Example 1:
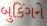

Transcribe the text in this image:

બુકિંગને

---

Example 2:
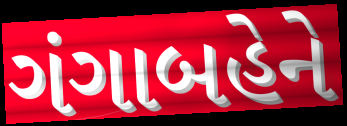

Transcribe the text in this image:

ગંગાબહેને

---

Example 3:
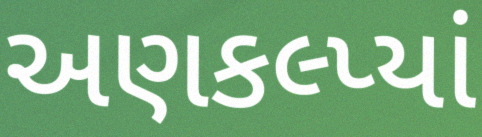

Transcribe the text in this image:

અણકલ્પ્યાં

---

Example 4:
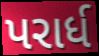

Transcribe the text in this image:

પરાર્ધ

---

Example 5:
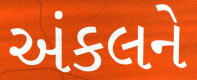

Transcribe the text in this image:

અંકલને